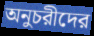
অনুচরীদের